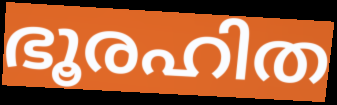
ഭൂരഹിത